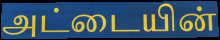
அட்டையின்